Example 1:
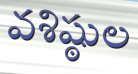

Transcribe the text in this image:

వశిష్ఠుల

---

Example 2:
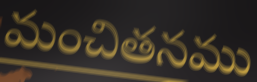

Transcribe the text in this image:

మంచితనము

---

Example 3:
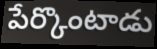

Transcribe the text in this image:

పేర్కొంటాడు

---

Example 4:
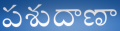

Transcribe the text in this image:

పశుదాణా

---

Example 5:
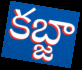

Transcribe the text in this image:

కబ్జా